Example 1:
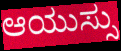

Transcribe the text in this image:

ಆಯುಸ್ಸು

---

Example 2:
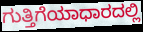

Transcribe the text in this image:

ಗುತ್ತಿಗೆಯಾಧಾರದಲ್ಲಿ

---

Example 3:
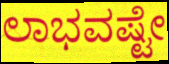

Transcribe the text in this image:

ಲಾಭವಷ್ಟೇ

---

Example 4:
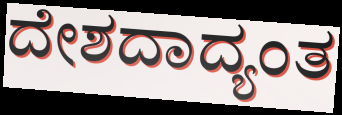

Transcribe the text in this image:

ದೇಶದಾದ್ಯಂತ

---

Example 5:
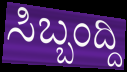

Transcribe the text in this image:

ಸಿಬ್ಬಂದ್ದಿ